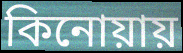
কিনোয়ায়